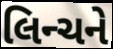
લિન્ચને